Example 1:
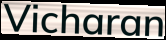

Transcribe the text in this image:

Vicharan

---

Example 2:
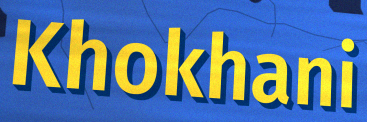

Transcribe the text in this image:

Khokhani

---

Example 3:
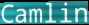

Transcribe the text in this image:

Camlin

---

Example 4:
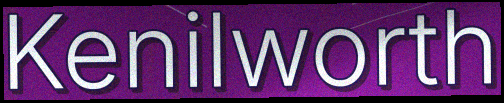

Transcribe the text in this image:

Kenilworth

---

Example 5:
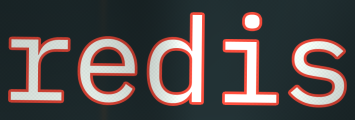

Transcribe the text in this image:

redis